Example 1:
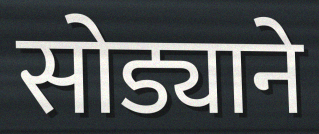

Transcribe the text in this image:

सोड्याने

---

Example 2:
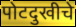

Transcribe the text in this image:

पोटदुखीचे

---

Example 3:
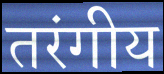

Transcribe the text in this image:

तरंगीय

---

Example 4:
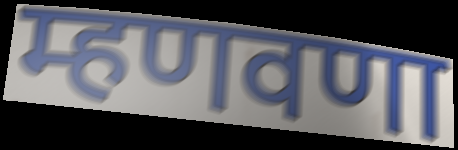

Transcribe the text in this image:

म्हणवणा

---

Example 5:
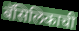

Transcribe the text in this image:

बॅसिलिकाची